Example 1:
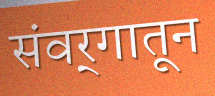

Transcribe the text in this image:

संवर्गातून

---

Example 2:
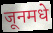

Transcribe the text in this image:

जूनमधे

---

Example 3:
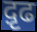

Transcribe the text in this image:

द़ृढ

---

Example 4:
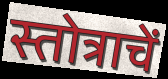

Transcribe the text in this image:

स्तोत्राचें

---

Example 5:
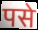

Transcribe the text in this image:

पसे